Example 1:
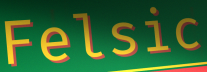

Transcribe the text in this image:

Felsic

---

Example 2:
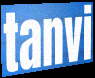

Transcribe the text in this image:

tanvi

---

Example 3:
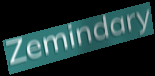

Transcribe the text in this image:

Zemindary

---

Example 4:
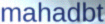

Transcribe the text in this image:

mahadbt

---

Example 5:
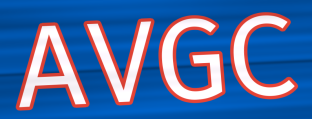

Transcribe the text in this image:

AVGC